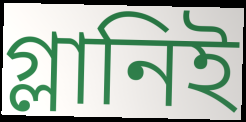
গ্লানিই